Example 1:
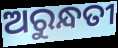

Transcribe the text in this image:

ଅରୁନ୍ଧତୀ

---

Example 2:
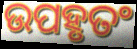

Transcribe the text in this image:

ଉପହୃତଂ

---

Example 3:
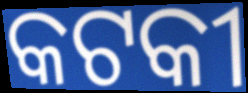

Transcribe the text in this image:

କଟକୀ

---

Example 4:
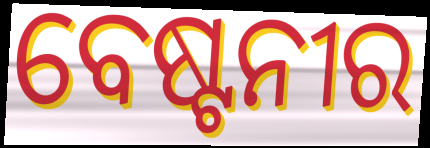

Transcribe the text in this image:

ବେଷ୍ଟନୀର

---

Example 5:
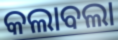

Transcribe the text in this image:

କଲାବଲା